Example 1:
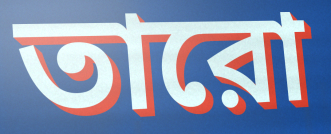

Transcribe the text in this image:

তারো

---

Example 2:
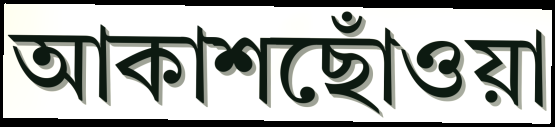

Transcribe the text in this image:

আকাশছোঁওয়া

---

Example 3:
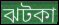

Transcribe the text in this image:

ঝটকা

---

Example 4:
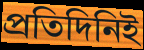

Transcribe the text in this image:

প্রতিদিনিই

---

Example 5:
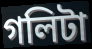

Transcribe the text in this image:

গলিটা